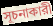
সূচনাকারী